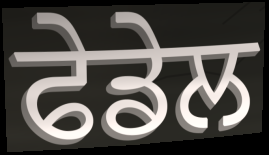
ਫੇਡੇਲ